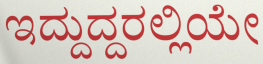
ಇದ್ದುದ್ದರಲ್ಲಿಯೇ